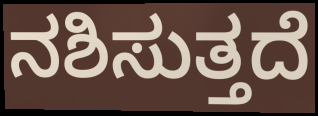
ನಶಿಸುತ್ತದೆ